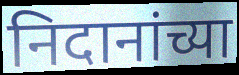
निदानांच्या